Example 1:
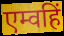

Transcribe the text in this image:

एम्वहिं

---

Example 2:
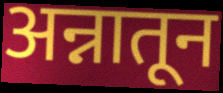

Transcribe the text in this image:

अन्नातून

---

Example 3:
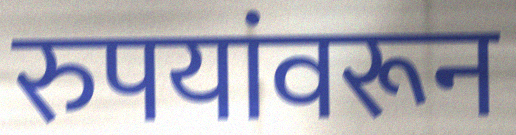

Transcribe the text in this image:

रुपयांवरून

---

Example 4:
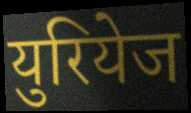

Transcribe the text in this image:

युरियेज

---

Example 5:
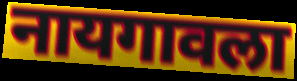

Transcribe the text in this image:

नायगावला